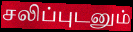
சலிப்புடனும்